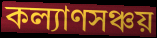
কল্যাণসঞ্চয়